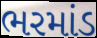
ભરમાંડ